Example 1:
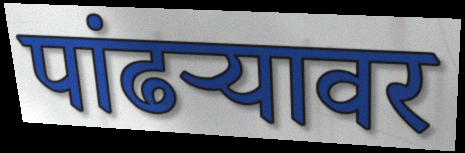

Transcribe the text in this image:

पांढर्‍यावर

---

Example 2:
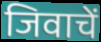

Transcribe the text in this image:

जिवाचें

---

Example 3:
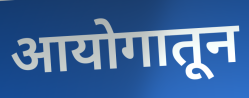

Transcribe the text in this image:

आयोगातून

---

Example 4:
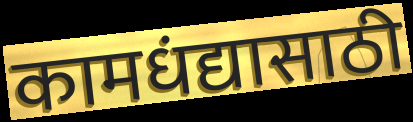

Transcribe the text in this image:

कामधंद्यासाठी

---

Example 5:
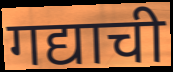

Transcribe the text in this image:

गद्याची